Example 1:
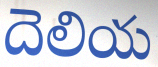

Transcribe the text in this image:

దెలియ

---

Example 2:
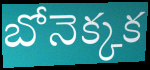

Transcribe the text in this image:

బోనెక్కక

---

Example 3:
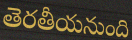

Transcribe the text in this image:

తెరతీయనుంది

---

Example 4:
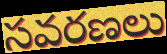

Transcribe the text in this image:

సవరణలు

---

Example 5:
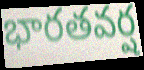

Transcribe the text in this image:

భారతవర్ష